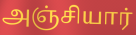
அஞ்சியார்